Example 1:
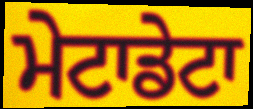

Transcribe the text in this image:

ਮੇਟਾਡੇਟਾ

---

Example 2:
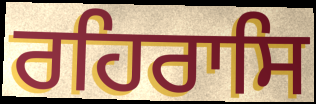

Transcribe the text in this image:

ਰਹਿਰਾਸਿ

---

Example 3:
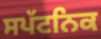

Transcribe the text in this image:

ਸਪੱਟਨਿਕ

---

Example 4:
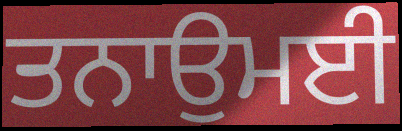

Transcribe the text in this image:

ਤਨਾਉਮਈ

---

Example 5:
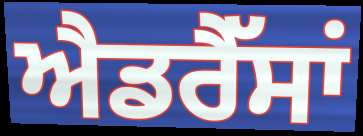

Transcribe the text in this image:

ਐਡਰੈੱਸਾਂ